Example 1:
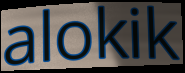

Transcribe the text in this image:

alokik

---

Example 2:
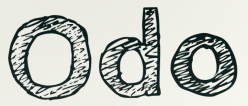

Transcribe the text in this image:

Odo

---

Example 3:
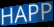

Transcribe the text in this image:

HAPP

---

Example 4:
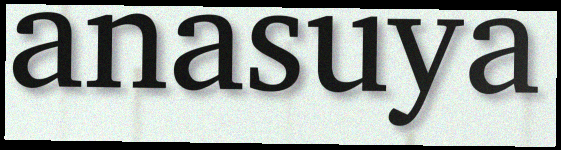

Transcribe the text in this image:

anasuya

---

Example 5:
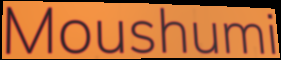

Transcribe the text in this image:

Moushumi